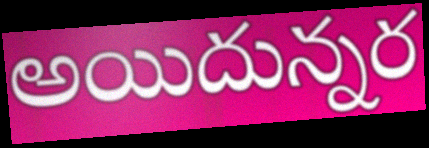
అయిదున్నర